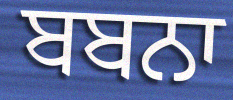
ਬਬਨਾ